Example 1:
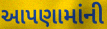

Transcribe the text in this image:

આપણામાંની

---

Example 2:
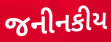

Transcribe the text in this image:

જનીનકીય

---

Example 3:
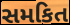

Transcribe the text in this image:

સમકિત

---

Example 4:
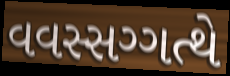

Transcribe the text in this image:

વવસ્સગ્ગત્થે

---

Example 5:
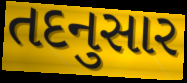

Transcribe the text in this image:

તદનુસાર